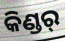
କିଣ୍ଡର୍